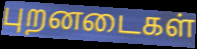
புறனடைகள்